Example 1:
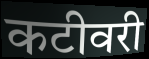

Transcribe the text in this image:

कटीवरी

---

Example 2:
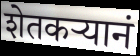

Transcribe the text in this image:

शेतकऱ्यानं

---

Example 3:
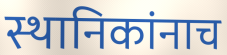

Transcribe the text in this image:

स्थानिकांनाच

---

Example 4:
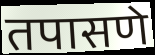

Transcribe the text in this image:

तपासणे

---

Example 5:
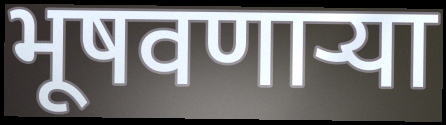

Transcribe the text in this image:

भूषवणाऱ्या